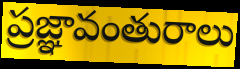
ప్రజ్ఞావంతురాలు